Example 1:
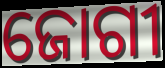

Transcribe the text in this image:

ଜୋଗୀ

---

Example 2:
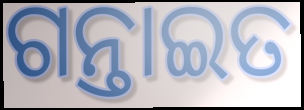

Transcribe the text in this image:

ଗନ୍ତାଇତ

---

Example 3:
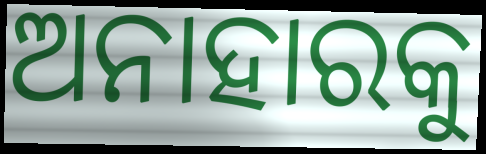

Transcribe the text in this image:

ଅନାହାରକୁ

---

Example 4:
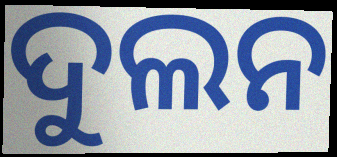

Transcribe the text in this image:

ଦୁଲନ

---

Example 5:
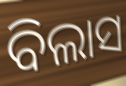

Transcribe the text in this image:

ବିଲାସ